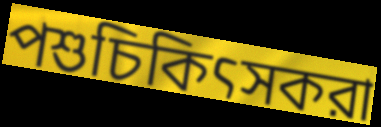
পশুচিকিৎসকরা